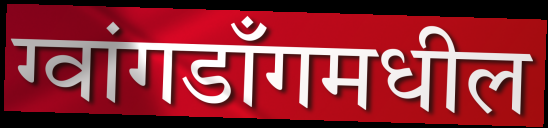
ग्वांगडाँगमधील